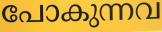
പോകുന്നവ